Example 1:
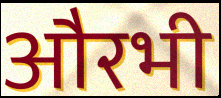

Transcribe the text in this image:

औरभी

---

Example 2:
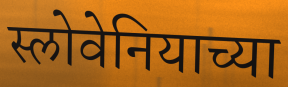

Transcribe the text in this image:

स्लोवेनियाच्या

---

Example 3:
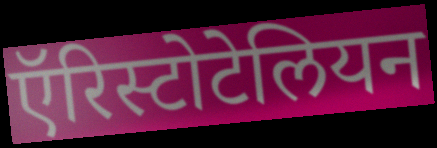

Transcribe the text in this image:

ऍरिस्टोटेलियन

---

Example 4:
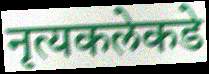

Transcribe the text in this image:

नृत्यकलेकडे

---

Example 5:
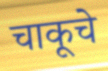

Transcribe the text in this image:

चाकूचे